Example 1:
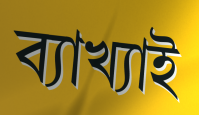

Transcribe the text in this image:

ব্যাখ্যাই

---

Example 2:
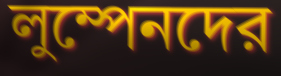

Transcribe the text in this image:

লুম্পেনদের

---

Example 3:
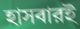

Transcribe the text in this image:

হাসবারই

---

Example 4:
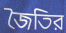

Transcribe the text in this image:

জৈতির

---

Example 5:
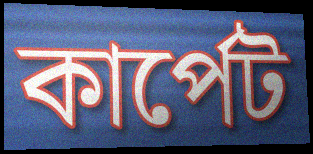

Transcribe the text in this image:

কার্পেট